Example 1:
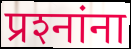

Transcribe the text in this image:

प्रश्नांना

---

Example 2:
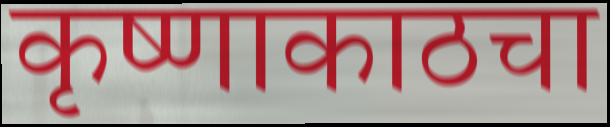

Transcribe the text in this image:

कृष्णाकाठचा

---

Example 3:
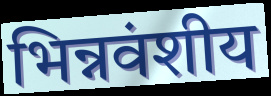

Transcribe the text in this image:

भिन्नवंशीय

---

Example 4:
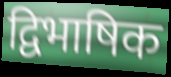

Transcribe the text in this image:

द्विभाषिक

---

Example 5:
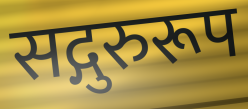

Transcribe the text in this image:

सद्गुरुरूप